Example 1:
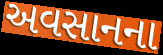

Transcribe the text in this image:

અવસાનના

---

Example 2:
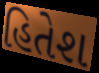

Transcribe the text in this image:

હિતેશ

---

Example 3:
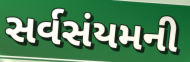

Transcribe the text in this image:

સર્વસંયમની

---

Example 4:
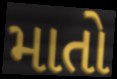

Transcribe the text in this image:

માતો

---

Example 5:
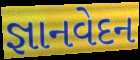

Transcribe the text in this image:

જ્ઞાનવેદન